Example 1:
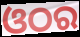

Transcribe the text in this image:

ଓଠର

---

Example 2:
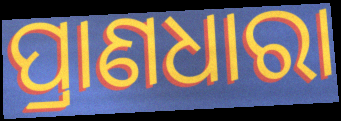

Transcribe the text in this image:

ପ୍ରାଣଧାରା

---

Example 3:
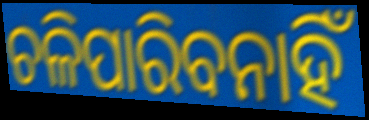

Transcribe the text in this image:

ଚଳିପାରିବନାହିଁ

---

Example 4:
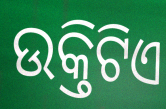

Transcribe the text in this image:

ଉକ୍ତିଟିଏ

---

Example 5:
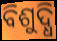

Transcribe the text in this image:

ବିଶୁଦ୍ଧି